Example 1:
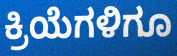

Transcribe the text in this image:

ಕ್ರಿಯೆಗಳಿಗೂ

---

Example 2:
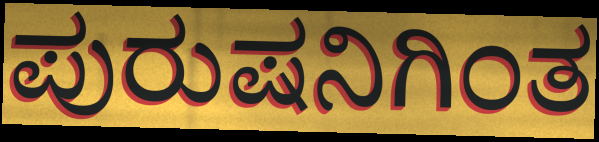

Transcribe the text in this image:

ಪುರುಷನಿಗಿಂತ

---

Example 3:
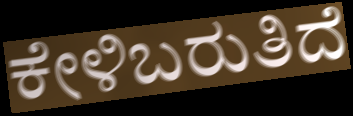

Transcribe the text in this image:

ಕೇಳಿಬರುತಿದೆ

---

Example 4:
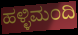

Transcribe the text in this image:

ಹಳ್ಳಿಮಂದಿ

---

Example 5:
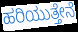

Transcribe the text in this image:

ಹರಿಯುತ್ತೇನೆ